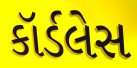
કૉર્ડલેસ